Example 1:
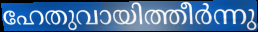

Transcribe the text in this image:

ഹേതുവായിത്തീർന്നു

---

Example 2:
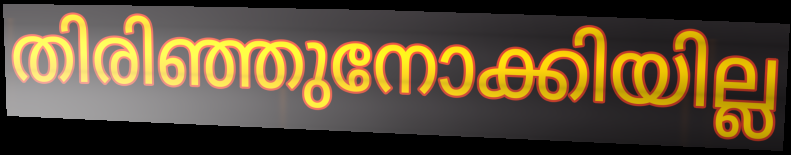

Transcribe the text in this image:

തിരിഞ്ഞുനോക്കിയില്ല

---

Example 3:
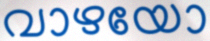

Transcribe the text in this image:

വാഴയോ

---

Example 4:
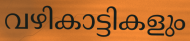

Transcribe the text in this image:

വഴികാട്ടികളും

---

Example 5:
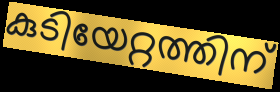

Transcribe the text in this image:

കുടിയേറ്റത്തിന്